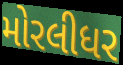
મોરલીધર